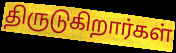
திருடுகிறார்கள்